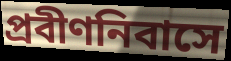
প্রবীণনিবাসে